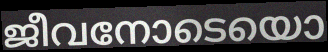
ജീവനോടെയൊ